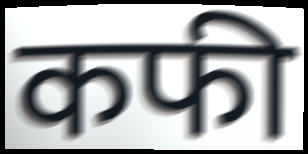
कफी